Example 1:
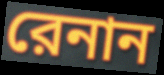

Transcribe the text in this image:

রেনান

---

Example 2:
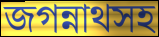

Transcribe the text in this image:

জগন্নাথসহ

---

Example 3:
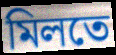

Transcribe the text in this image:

মিলতে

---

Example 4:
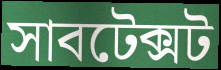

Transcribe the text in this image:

সাবটেক্সট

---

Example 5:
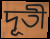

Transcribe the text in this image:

দূতী